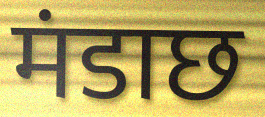
मंडाछ